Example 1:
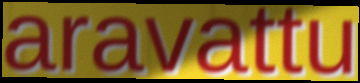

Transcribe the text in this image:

aravattu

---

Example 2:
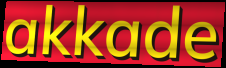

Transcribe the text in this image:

akkade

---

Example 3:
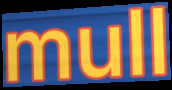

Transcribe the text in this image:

mull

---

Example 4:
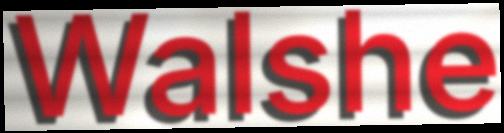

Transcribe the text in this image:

Walshe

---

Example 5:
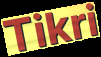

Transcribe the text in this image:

Tikri